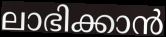
ലാഭിക്കാൻ